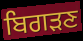
ਬਿਗੜਣ